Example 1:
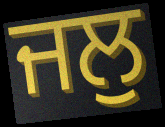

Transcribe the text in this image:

ਜਲੁ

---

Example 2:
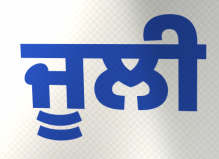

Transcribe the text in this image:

ਜੂਲੀ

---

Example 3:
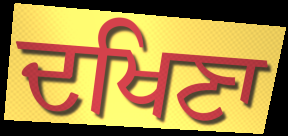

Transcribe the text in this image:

ਦਖਿਣਾ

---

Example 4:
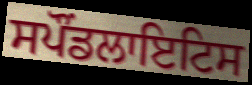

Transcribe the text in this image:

ਸਪੌਂਡਲਾਇਟਿਸ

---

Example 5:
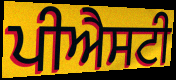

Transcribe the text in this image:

ਪੀਐਸਟੀ